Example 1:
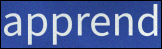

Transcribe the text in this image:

apprend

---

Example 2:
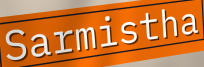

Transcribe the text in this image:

Sarmistha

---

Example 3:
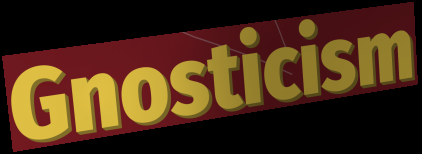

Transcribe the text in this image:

Gnosticism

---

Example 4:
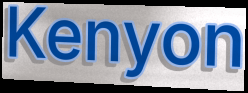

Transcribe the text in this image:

Kenyon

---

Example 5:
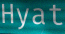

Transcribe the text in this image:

Hyat